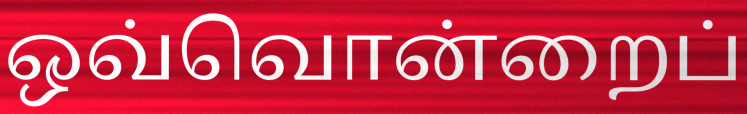
ஒவ்வொன்றைப்